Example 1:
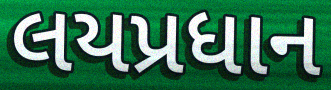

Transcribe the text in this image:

લયપ્રધાન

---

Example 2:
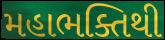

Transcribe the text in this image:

મહાભક્તિથી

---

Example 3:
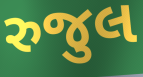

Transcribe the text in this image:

રુજુલ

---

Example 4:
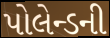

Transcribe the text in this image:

પોલેન્ડની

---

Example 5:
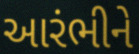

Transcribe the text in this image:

આરંભીને